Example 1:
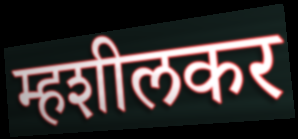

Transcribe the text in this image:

म्हशीलकर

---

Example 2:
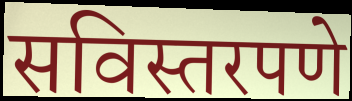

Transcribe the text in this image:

सविस्तरपणे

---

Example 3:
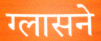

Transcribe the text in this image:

ग्लासने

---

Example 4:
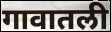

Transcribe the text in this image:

गावातली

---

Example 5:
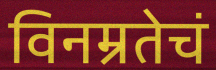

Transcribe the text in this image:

विनम्रतेचं